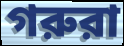
গরুরা